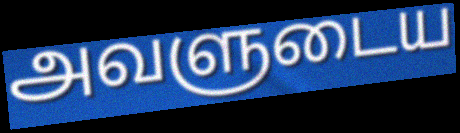
அவளுடைய